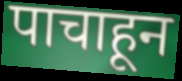
पाचाहून